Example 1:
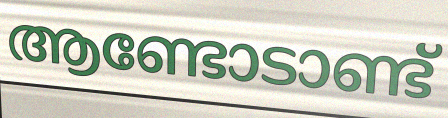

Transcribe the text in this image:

ആണ്ടോടാണ്ട്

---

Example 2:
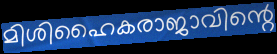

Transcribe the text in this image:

മിശിഹൈകരാജാവിന്റെ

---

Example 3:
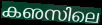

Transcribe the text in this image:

കഌസിലെ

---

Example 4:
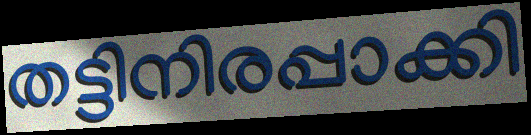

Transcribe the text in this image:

തട്ടിനിരപ്പാക്കി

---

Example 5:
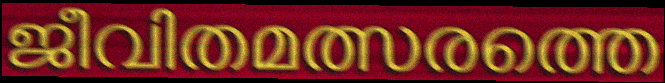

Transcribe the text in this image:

ജീവിതമത്സരത്തെ